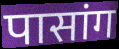
पासांग